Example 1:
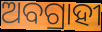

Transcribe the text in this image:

ଅବଗ୍ରାହୀ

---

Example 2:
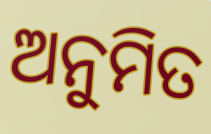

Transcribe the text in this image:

ଅନୁମିତ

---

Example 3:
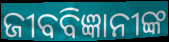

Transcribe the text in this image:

ଜୀବବିଜ୍ଞାନୀଙ୍କ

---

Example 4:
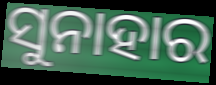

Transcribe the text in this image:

ସୁନାହାର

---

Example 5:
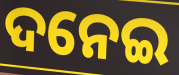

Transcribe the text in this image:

ଦନେଇ